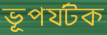
ভূপর্যটক